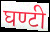
घण्टी